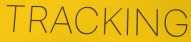
TRACKING